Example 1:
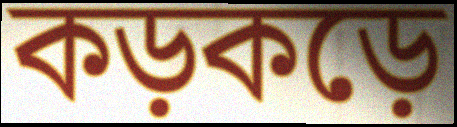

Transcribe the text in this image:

কড়কড়ে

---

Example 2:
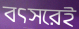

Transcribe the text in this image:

বৎসরেই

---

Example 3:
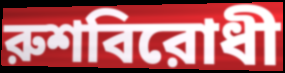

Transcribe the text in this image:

রুশবিরোধী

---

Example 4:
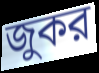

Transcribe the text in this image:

জুকর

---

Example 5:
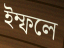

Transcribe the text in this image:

ইম্ফলে